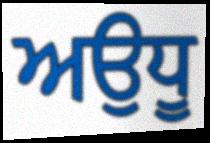
ਅਉਧੂ